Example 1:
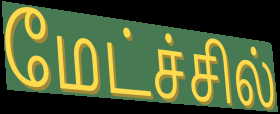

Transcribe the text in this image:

மேட்ச்சில்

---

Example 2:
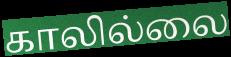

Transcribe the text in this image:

காலில்லை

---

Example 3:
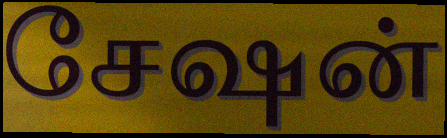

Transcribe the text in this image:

சேஷன்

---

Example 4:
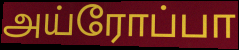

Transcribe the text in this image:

அய்ரோப்பா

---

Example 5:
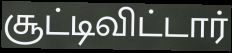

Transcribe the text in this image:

சூட்டிவிட்டார்